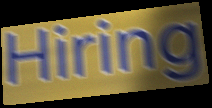
Hiring